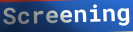
Screening